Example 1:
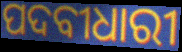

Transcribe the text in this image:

ପଦବୀଧାରୀ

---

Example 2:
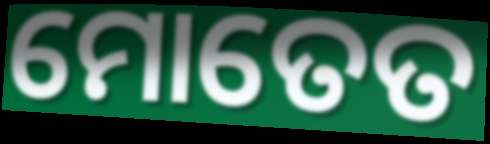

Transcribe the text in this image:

ମୋତେତ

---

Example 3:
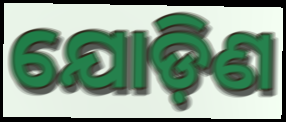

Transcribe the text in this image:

ଯୋଡ଼ିଣ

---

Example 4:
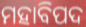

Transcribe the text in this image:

ମହାବିପଦ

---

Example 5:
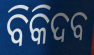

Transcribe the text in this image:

ବିକିଦବ